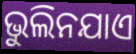
ଭୁଲିନଯାଏ